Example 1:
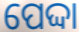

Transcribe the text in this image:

ପେଦ୍ଦା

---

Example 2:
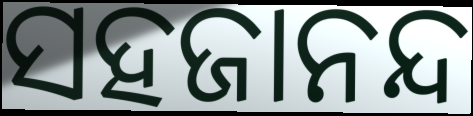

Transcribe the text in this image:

ସହଜାନନ୍ଦ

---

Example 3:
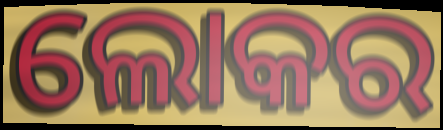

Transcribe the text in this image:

ଲୋକର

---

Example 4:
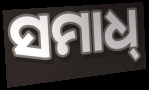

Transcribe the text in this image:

ସମାଧ୍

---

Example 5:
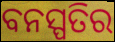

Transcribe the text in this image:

ବନସ୍ପତିର